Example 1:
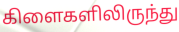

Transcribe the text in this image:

கிளைகளிலிருந்து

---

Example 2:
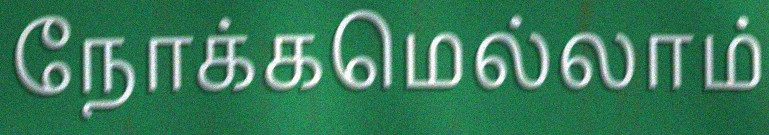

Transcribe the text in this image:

நோக்கமெல்லாம்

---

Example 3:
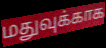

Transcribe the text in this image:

மதுவுக்காக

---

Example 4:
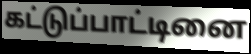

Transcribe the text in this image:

கட்டுப்பாட்டினை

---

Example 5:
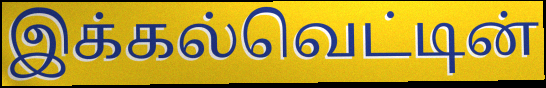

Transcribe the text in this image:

இக்கல்வெட்டின்